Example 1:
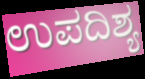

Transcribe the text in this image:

ಉಪದಿಶ್ಯ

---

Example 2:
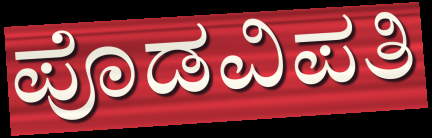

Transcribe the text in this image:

ಪೊಡವಿಪತಿ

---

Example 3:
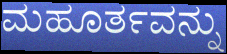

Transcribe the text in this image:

ಮಹೂರ್ತವನ್ನು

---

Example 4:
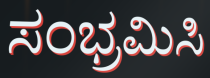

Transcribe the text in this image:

ಸಂಭ್ರಮಿಸಿ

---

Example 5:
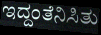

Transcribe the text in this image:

ಇದ್ದಂತೆನಿಸಿತು